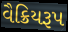
વૈક્રિયરૂપ